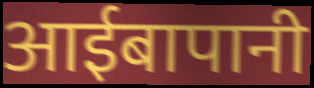
आईबापानी